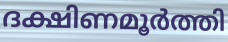
ദക്ഷിണമൂർത്തി